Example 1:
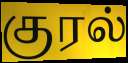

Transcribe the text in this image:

குரல்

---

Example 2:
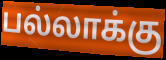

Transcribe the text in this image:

பல்லாக்கு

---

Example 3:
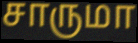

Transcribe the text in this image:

சாருமா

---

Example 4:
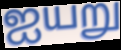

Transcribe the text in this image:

ஐயறு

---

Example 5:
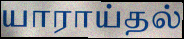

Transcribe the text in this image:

யாராய்தல்